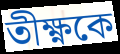
তীক্ষ্ণকে